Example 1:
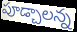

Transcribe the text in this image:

పూడ్చాలన్న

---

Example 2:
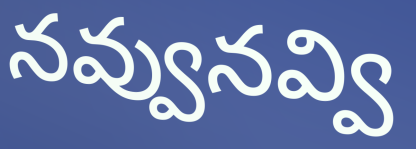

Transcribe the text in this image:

నవ్వునవ్వి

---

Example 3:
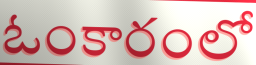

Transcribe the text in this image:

ఓంకారంలో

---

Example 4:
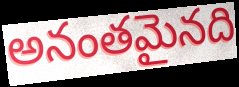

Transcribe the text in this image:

అనంతమైనది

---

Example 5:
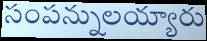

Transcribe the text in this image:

సంపన్నులయ్యారు